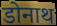
डोनाथ